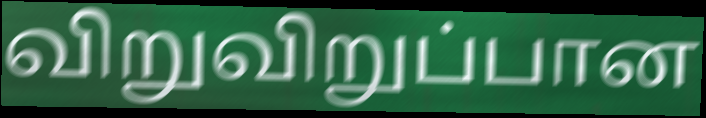
விறுவிறுப்பான